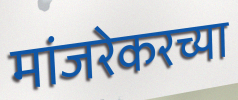
मांजरेकरच्या